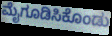
ಮೈಗೂಡಿಸಿಕೊಂಡು